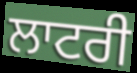
ਲਾਟਰੀ